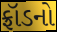
ફ્રૉડનો